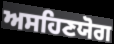
ਅਸਹਿਣਯੋਗ